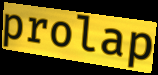
prolap